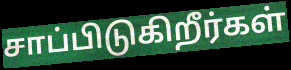
சாப்பிடுகிறீர்கள்